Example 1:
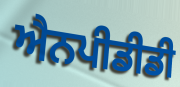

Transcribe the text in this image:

ਐਨਪੀਡੀਡੀ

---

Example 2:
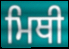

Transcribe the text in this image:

ਮਿਥੀ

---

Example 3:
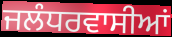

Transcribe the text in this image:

ਜਲੰਧਰਵਾਸੀਆਂ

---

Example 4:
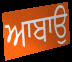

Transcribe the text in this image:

ਆਬਾਉ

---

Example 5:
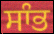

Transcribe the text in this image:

ਸਾੰਭ